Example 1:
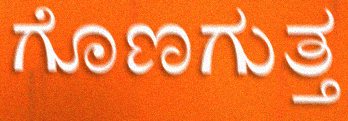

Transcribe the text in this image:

ಗೊಣಗುತ್ತ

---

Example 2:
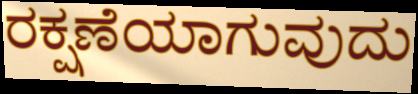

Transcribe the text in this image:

ರಕ್ಷಣೆಯಾಗುವುದು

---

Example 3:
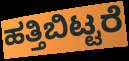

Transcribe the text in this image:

ಹತ್ತಿಬಿಟ್ಟರೆ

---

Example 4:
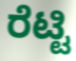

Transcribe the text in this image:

ರೆಟ್ಟಿ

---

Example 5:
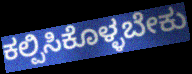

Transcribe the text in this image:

ಕಲ್ಪಿಸಿಕೊಳ್ಳಬೇಕು